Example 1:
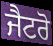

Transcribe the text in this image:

ਜੈਟਰੋ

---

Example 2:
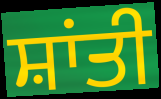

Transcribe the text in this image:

ਸ਼ਾਂਤੀ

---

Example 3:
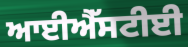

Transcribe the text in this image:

ਆਈਐੱਸਟੀਈ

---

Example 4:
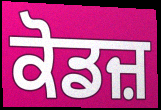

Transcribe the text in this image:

ਕੋਡਜ਼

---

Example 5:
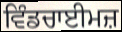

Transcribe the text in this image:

ਵਿੰਡਚਾਈਮਜ਼